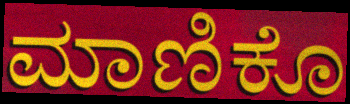
ಮಾಣಿಕೊ